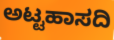
ಅಟ್ಟಹಾಸದಿ